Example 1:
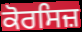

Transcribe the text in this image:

ਕੋਰਸਿਜ਼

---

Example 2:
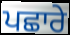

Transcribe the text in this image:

ਪਛਾਰੇ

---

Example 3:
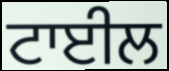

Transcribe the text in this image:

ਟਾਈਲ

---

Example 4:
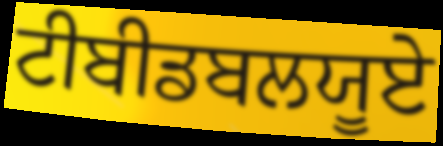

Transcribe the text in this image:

ਟੀਬੀਡਬਲਯੂਏ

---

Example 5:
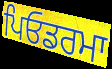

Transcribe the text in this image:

ਪਿਓਡਰਮਾ